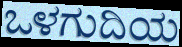
ಒಳಗುದಿಯ